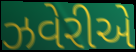
ઝવેરીએ